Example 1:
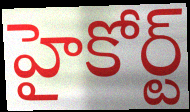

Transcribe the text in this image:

హైకోర్ట్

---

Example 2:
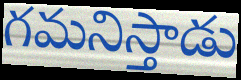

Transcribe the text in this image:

గమనిస్తాడు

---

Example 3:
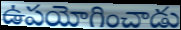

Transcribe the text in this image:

ఉపయోగించాడు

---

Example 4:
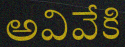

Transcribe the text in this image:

అవివేకి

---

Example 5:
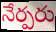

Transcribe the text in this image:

నేర్పరు